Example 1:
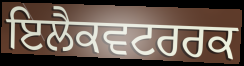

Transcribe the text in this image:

ਇਲੈਕਵਟਰਰਕ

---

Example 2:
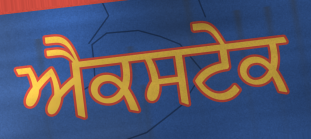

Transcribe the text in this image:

ਐਕਸਟੇਕ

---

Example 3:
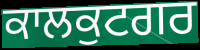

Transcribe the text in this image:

ਕਾਲਕੁਟਗਰ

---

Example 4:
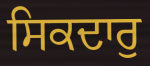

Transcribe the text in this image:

ਸਿਕਦਾਰੁ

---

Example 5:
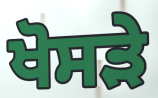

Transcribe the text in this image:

ਖੋਸੜੇ